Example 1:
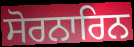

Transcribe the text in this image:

ਸੋਰਨਾਰਿਨ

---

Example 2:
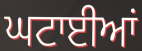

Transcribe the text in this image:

ਘਟਾਈਆਂ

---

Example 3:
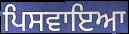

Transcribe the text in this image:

ਪਿਸਵਾਇਆ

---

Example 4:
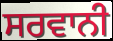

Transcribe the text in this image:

ਸਰਵਾਨੀ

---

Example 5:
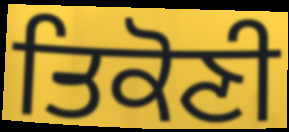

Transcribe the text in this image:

ਤਿਕੋਣੀ